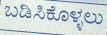
ಬಡಿಸಿಕೊಳ್ಳಲು